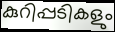
കുറിപ്പടികളും